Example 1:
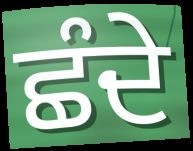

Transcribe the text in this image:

ਛੰਦੇ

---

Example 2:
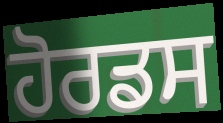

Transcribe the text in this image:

ਹੋਰਡਸ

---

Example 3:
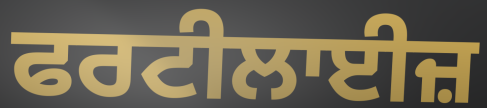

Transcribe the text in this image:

ਫਰਟੀਲਾਈਜ਼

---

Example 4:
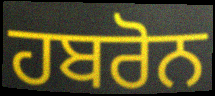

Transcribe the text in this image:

ਹਬਰੋਨ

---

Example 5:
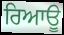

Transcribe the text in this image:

ਰਿਆਊ